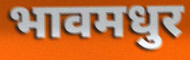
भावमधुर